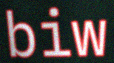
biw